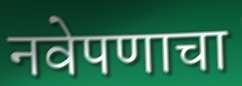
नवेपणाचा